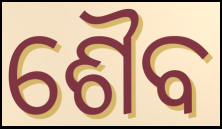
ଶୈବ